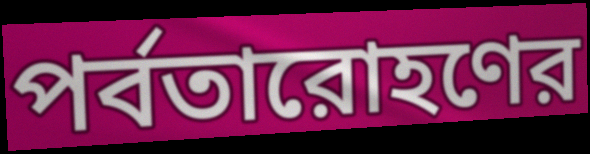
পর্বতারোহণের